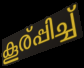
കൂര്പ്പിച്ച്